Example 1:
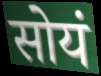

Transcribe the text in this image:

सोयं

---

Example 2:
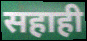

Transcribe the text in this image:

सहाही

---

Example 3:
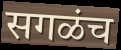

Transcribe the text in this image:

सगळंच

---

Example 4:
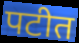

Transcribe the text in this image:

पटीत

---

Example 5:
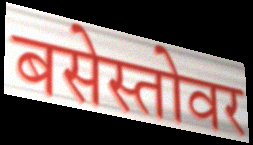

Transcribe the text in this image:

बसेस्तोवर